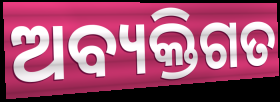
ଅବ୍ୟକ୍ତିଗତ